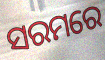
ସରମରେ